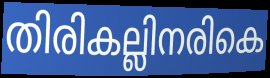
തിരികല്ലിനരികെ